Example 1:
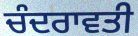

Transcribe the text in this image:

ਚੰਦਰਾਵਤੀ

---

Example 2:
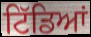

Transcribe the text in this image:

ਟਿੱਡਿਆਂ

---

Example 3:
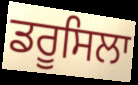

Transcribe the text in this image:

ਡਰੂਸਿਲਾ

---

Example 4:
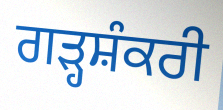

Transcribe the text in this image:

ਗੜ੍ਹਸ਼ੰਕਰੀ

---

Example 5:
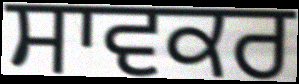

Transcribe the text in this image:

ਸਾਵਕਰ